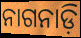
ନାଗନାଡ଼ି